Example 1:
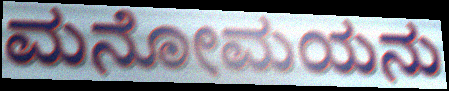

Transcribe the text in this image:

ಮನೋಮಯನು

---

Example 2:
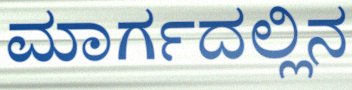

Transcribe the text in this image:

ಮಾರ್ಗದಲ್ಲಿನ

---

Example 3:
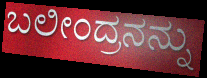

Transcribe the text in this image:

ಬಲೀಂದ್ರನನ್ನು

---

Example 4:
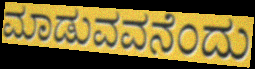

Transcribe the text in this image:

ಮಾಡುವವನೆಂದು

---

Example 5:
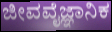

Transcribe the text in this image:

ಜೀವವೈಜ್ಞಾನಿಕ